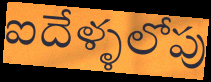
ఐదేళ్ళలోపు